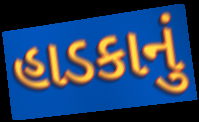
હાડકાનું